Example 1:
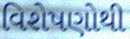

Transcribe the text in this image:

વિશેષણોથી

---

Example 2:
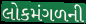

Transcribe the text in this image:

લોકમંગળની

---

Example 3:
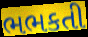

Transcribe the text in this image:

ભભકતી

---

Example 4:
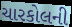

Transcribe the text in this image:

ચારકોલની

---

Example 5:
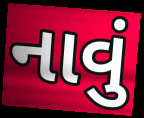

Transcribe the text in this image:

નાવું